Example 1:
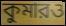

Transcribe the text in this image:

কুমারও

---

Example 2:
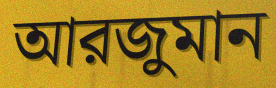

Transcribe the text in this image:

আরজুমান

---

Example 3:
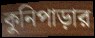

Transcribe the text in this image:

কুনিপাড়ার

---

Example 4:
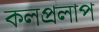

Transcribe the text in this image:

কলপ্রলাপ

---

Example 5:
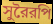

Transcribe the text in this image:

সুরৈরপি